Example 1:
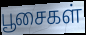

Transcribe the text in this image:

பூசைகள்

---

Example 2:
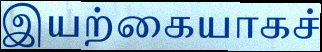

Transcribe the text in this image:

இயற்கையாகச்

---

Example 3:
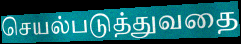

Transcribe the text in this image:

செயல்படுத்துவதை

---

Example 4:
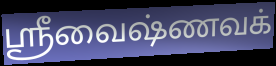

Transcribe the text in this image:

ஸ்ரீவைஷ்ணவக்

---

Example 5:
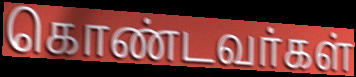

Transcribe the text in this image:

கொண்டவர்கள்